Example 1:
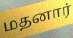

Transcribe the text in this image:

மதனார்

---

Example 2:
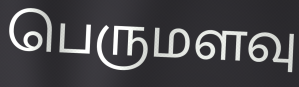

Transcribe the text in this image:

பெருமளவு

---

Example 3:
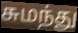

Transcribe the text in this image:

சுமந்து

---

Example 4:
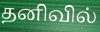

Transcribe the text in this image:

தனிவில்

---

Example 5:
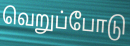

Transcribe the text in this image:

வெறுப்போடு